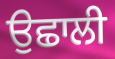
ਉਛਾਲੀ